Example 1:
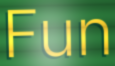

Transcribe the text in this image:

Fun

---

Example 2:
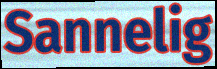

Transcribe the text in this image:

Sannelig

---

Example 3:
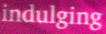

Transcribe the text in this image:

indulging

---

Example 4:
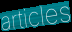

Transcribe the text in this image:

articles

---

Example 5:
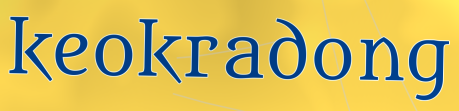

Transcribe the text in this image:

keokradong